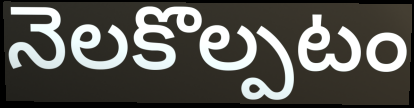
నెలకొల్పటం